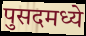
पुसदमध्ये